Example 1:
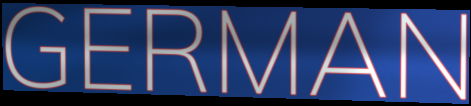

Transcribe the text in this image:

GERMAN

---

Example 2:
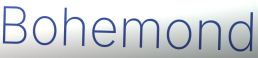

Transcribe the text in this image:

Bohemond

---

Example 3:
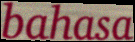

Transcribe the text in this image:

bahasa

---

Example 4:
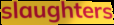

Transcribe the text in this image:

slaughters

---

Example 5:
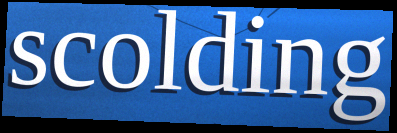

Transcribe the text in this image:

scolding